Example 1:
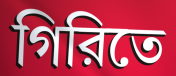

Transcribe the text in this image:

গিরিতে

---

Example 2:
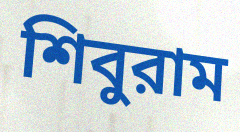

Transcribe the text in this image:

শিবুরাম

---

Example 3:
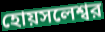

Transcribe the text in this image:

হোয়সলেশ্বর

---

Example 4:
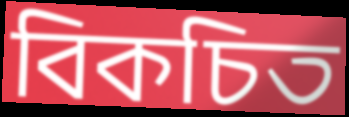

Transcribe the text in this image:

বিকচিত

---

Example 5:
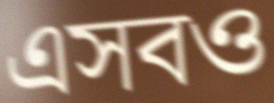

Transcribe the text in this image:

এসবও